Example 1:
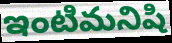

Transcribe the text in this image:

ఇంటిమనిషి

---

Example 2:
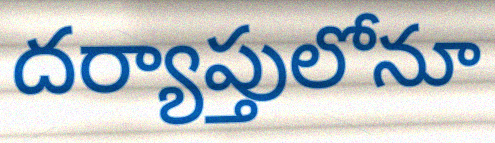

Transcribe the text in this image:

దర్యాప్తులోనూ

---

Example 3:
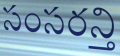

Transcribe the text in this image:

సంసరన్తి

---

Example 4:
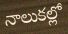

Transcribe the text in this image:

నాలుకల్లో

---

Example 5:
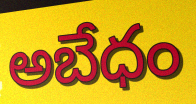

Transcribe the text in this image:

అబేధం